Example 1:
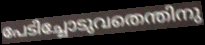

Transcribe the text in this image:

പേടിച്ചോടുവതെന്തിനു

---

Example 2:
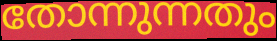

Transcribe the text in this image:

തോന്നുന്നതും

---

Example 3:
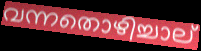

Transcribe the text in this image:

വന്നതൊഴിച്ചാല്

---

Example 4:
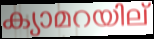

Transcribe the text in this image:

ക്യാമറയില്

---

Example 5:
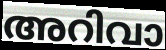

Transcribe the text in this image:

അറിവാ